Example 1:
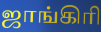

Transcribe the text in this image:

ஜாங்கிரி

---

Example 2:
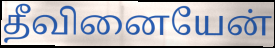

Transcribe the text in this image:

தீவினையேன்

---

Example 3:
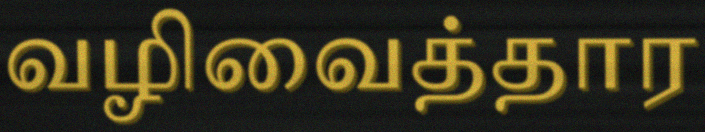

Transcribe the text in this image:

வழிவைத்தார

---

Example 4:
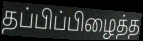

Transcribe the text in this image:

தப்பிப்பிழைத்த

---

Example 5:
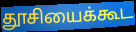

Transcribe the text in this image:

தூசியைக்கூட